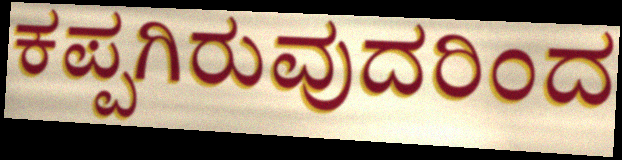
ಕಪ್ಪಗಿರುವುದರಿಂದ